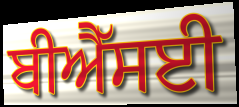
ਬੀਐੱਸਈ